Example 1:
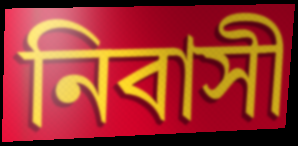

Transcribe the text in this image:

নিবাসী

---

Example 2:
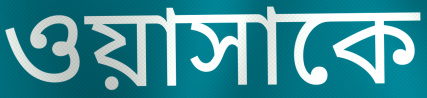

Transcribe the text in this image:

ওয়াসাকে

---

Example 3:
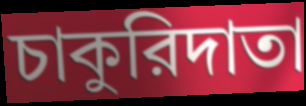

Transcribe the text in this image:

চাকুরিদাতা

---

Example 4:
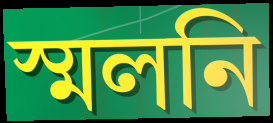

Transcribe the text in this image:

স্মলনি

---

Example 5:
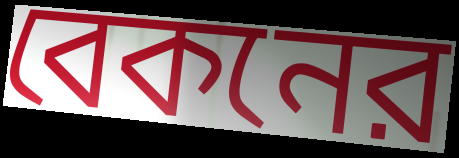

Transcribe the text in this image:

বেকনের